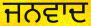
ਜਨਵਾਦ